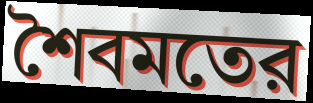
শৈবমতের